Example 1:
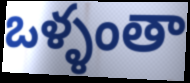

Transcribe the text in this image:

ఒళ్ళంతా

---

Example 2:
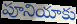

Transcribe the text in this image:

పూనియాకు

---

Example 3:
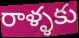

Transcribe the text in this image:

రాళ్ళకు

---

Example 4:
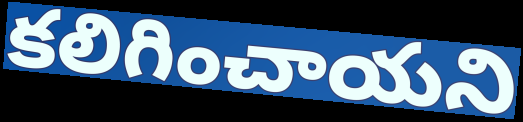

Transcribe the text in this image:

కలిగించాయని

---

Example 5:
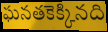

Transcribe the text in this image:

ఘనతకెక్కినది